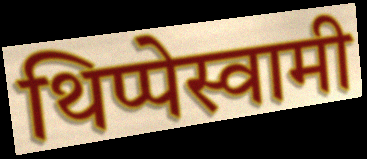
थिप्पेस्वामी